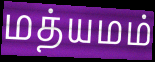
மத்யமம்